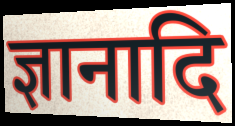
ज्ञानादि